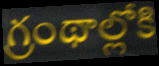
గ్రంథాల్లోకి